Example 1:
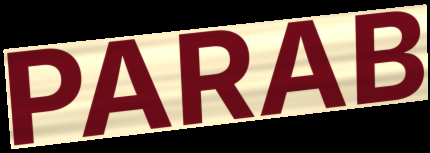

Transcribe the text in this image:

PARAB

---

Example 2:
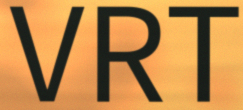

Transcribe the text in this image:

VRT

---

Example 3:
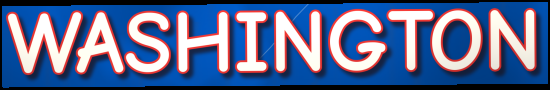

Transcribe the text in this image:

WASHINGTON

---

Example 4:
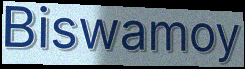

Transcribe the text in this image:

Biswamoy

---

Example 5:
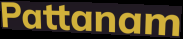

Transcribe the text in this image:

Pattanam